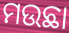
ମଉଛା